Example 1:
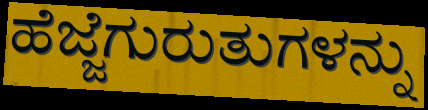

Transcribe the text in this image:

ಹೆಜ್ಜೆಗುರುತುಗಳನ್ನು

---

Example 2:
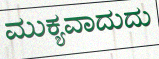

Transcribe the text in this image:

ಮುಕ್ಯವಾದುದು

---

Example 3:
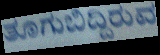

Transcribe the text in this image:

ತೂಗುಬಿದ್ದಿರುವ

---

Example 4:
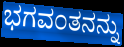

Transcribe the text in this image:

ಭಗವಂತನನ್ನು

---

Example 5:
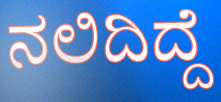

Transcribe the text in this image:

ನಲಿದಿದ್ದೆ